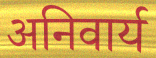
अनिवार्य